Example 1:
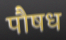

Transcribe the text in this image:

पौषध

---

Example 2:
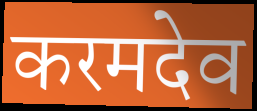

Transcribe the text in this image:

करमदेव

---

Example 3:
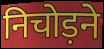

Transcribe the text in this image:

निचोड़ने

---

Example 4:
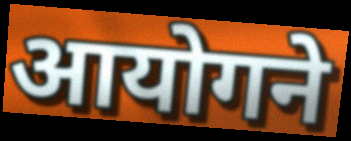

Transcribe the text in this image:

आयोगने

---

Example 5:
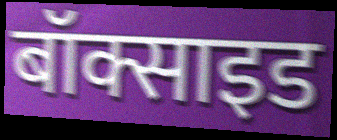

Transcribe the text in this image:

बॉक्साइड